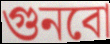
গুনবো